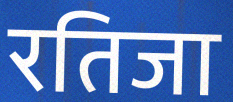
रतिजा